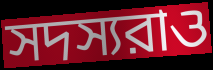
সদস্যরাও